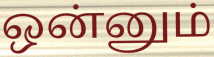
ஒன்னும்